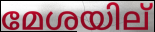
മേശയില്